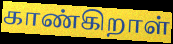
காண்கிறாள்